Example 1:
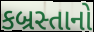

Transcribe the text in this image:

કબ્રસ્તાનો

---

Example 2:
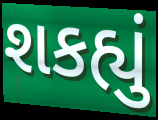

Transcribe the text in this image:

શકહ્યું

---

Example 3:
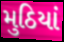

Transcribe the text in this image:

મુઠિયાં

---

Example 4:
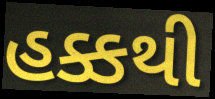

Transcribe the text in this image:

હક્કથી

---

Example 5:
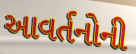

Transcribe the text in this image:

આવર્તનોની